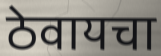
ठेवायचा